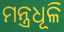
ମନ୍ତ୍ରଧୂଳି